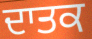
ਦਾਤਕ